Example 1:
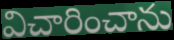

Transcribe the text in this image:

విచారించాను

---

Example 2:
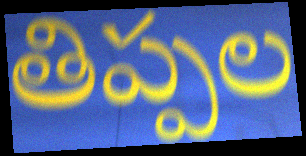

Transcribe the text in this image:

తిప్పల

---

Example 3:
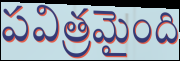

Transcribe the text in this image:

పవిత్రమైంది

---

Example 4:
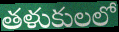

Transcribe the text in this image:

తళుకులలో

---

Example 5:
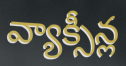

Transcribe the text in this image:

వ్యాక్సీన్ల